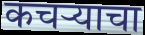
कचऱ्याचा